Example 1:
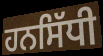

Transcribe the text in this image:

ਹਨਸਿੱਧੀ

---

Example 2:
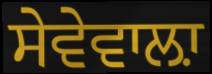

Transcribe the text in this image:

ਸੇਵੇਵਾਲ਼ਾ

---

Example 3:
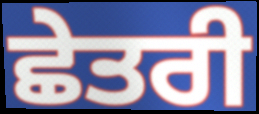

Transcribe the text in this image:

ਛੇਤਰੀ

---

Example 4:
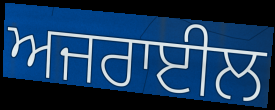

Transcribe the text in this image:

ਅਜਰਾਈਲ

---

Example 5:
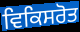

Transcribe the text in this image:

ਵਿਕਿਸਰੋਤ